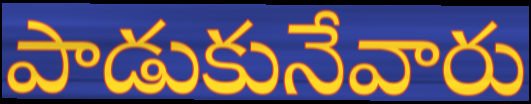
పాడుకునేవారు